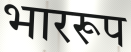
भाररूप